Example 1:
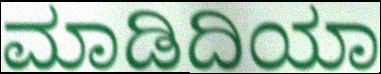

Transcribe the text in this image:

ಮಾಡಿದಿಯಾ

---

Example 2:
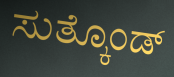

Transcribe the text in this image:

ಸುತ್ಕೊಂಡ್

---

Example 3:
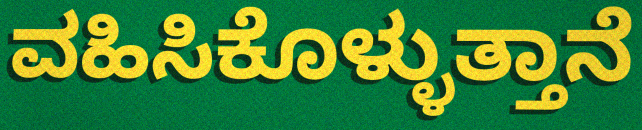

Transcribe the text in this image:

ವಹಿಸಿಕೊಳ್ಳುತ್ತಾನೆ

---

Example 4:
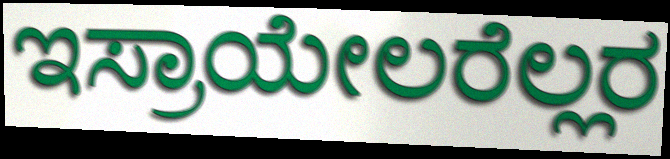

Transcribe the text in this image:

ಇಸ್ರಾಯೇಲರೆಲ್ಲರ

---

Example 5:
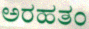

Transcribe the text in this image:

ಅರಹತಂ